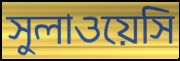
সুলাওয়েসি